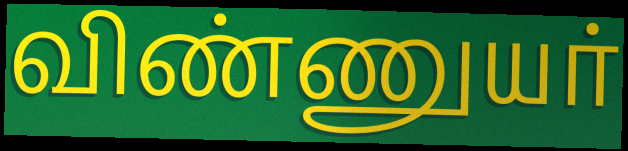
விண்ணுயர்